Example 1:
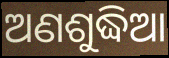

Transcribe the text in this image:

ଅଣଶୁଦ୍ଧିଆ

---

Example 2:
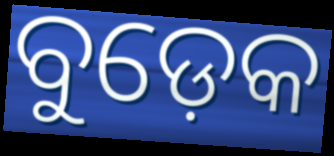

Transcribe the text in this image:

ବୁଡ଼େକ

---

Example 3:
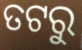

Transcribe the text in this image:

ତଟରୁ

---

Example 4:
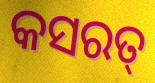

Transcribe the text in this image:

କସରତ୍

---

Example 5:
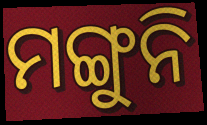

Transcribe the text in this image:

ମଙ୍ଗୁନି